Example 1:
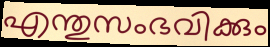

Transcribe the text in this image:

എന്തുസംഭവിക്കും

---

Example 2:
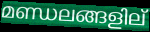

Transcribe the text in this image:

മണ്ഡലങ്ങളില്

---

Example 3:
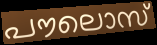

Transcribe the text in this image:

പൗലൊസ്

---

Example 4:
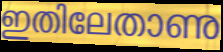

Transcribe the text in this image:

ഇതിലേതാണു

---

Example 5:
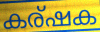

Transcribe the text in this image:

കര്ഷക